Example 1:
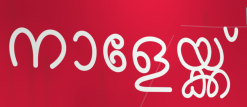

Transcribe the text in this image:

നാളേയ്ക്ക്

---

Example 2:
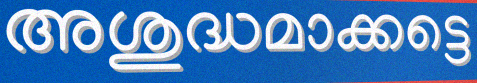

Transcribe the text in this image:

അശുദ്ധമാക്കട്ടെ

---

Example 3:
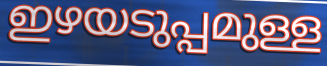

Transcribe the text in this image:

ഇഴയടുപ്പമുള്ള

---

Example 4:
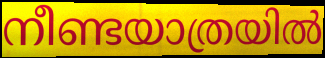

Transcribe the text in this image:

നീണ്ടയാത്രയിൽ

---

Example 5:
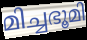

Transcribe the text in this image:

മിച്ചഭൂമി